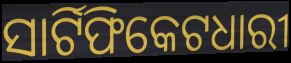
ସାର୍ଟିଫିକେଟଧାରୀ